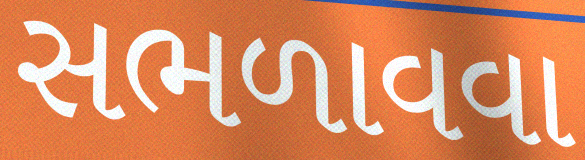
સભળાવવા